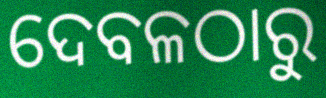
ଦେବଳଠାରୁ